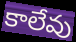
కాలేవు